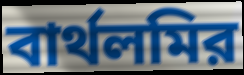
বার্থলমির